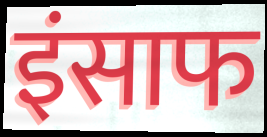
इंसाफ